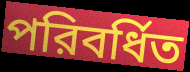
পরিবর্ধিত